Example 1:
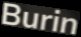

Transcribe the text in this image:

Burin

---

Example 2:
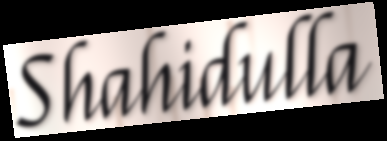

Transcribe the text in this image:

Shahidulla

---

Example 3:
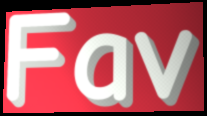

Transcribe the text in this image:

Fav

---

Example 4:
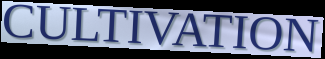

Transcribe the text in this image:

CULTIVATION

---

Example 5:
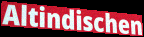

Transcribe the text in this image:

Altindischen